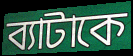
ব্যাটাকে